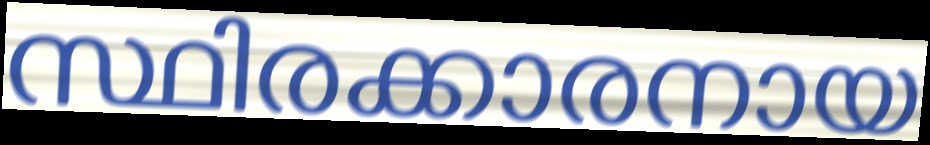
സ്ഥിരക്കാരനായ